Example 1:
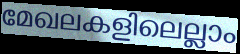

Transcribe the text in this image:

മേഖലകളിലെല്ലാം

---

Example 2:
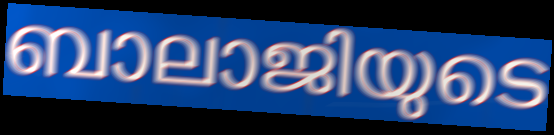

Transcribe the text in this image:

ബാലാജിയുടെ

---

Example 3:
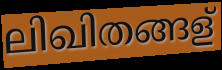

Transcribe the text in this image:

ലിഖിതങ്ങള്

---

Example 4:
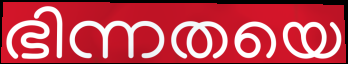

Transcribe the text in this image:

ഭിന്നതയെ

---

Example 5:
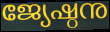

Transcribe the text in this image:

ജ്യേഷ്ഠനു